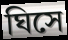
ঘিসে